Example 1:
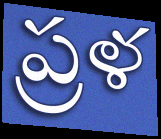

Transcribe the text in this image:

ప్రళ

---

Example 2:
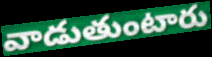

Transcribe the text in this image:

వాడుతుంటారు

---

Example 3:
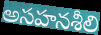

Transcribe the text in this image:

అసహనశీలి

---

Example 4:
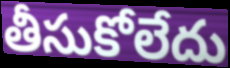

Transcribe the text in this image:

తీసుకోలేదు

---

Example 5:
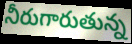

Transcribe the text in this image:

నీరుగారుతున్న